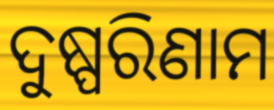
ଦୁଷ୍ପରିଣାମ